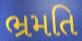
ભ્રમતિ